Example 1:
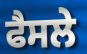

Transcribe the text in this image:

ਫੈਸਲੇ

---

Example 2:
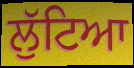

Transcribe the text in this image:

ਲੁੱਟਿਆ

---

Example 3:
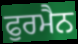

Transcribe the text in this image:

ਫੁਰਮੈਨ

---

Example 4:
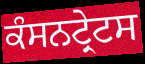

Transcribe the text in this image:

ਕੰਸਨਟ੍ਰੇਟਸ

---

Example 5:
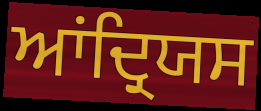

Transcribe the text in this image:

ਆਂਦ੍ਰਿਯਸ